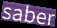
saber